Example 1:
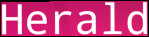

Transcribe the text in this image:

Herald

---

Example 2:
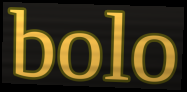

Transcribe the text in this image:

bolo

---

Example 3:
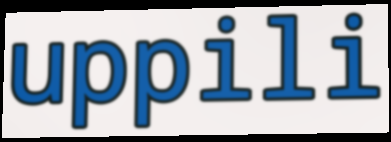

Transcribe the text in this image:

uppili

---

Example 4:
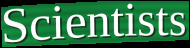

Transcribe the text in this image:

Scientists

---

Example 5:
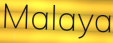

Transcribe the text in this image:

Malaya